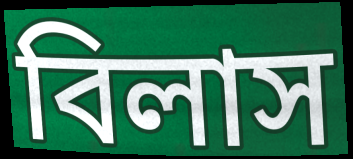
বিলাস